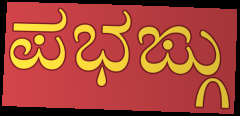
ಪಭಙ್ಗು